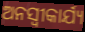
ଅନସ୍ବୀକାର୍ଯ୍ୟ